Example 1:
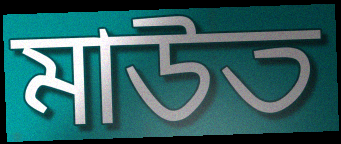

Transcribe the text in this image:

মাউত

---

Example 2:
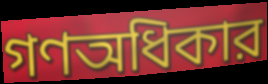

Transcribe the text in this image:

গণঅধিকার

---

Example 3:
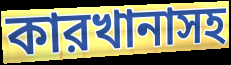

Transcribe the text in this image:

কারখানাসহ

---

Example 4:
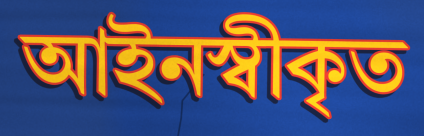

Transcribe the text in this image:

আইনস্বীকৃত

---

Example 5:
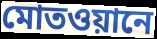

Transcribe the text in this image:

মোতওয়ানে